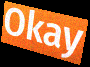
Okay